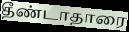
தீண்டாதாரை